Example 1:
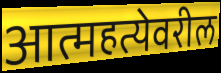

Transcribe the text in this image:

आत्महत्येवरील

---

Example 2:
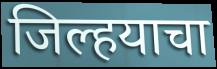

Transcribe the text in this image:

जिल्हयाचा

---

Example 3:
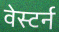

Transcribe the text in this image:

वेस्टर्न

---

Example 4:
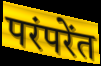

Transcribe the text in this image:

परंपरेंत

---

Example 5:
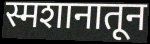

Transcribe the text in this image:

स्मशानातून